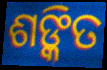
ଶଙ୍କିତ